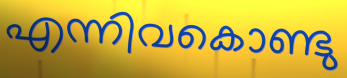
എന്നിവകൊണ്ടു